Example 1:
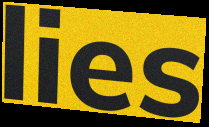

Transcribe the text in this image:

lies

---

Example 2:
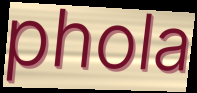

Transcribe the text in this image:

phola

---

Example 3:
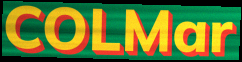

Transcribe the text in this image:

COLMar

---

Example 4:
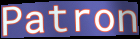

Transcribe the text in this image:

Patron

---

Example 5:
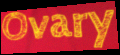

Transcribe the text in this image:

Ovary